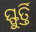
ସ୍ଫୁର୍ତ୍ତି